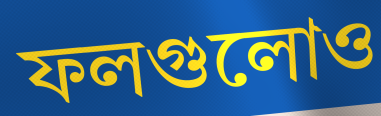
ফলগুলোও